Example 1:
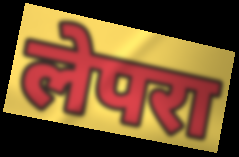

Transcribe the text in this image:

लेपरा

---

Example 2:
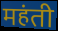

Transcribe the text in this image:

महंती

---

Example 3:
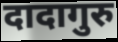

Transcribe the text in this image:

दादागुरु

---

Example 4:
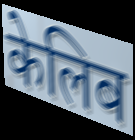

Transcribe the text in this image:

केलिब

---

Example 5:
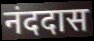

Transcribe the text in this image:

नंददास